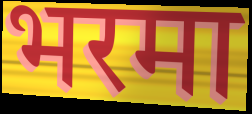
भरमा